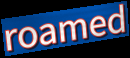
roamed